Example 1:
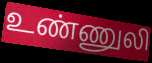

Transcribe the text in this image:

உண்ணுலி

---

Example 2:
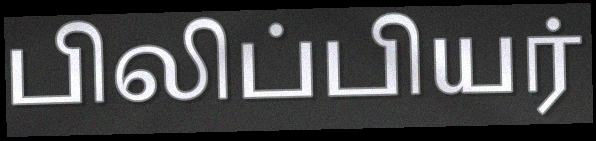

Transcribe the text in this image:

பிலிப்பியர்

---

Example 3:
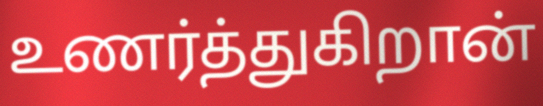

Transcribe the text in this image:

உணர்த்துகிறான்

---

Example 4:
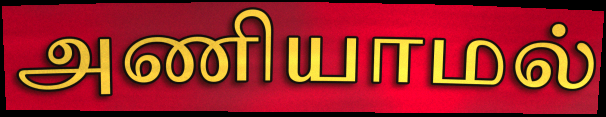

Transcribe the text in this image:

அணியாமல்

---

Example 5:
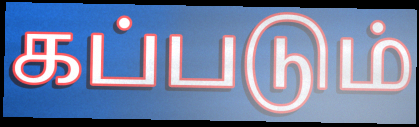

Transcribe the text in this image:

கப்படும்